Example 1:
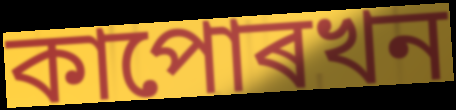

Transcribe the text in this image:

কাপোৰখন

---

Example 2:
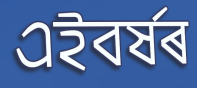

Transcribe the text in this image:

এইবৰ্ষৰ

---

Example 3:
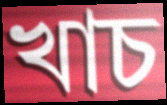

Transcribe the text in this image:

খাচ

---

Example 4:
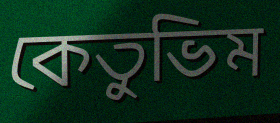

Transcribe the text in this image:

কেতুভিম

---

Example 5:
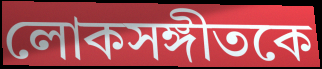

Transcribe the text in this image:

লোকসঙ্গীতকে